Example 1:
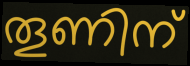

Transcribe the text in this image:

തൂണിന്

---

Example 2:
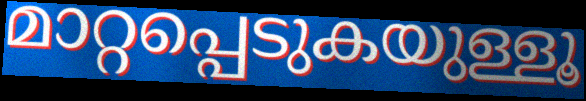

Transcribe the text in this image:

മാറ്റപ്പെടുകയുള്ളൂ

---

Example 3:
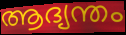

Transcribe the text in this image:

ആദ്യന്തം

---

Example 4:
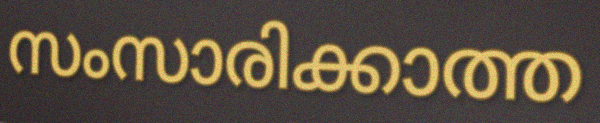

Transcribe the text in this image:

സംസാരിക്കാത്ത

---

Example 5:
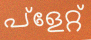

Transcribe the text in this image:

പ്ളേറ്റ്